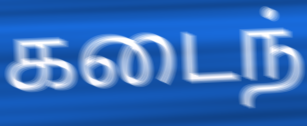
கடைந்